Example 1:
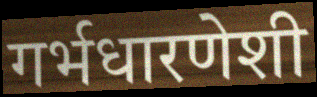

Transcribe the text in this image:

गर्भधारणेशी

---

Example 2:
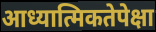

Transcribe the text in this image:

आध्यात्मिकतेपेक्षा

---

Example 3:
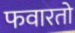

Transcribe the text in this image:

फवारतो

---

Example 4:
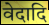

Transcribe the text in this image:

वेदादि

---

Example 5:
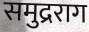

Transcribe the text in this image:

समुद्रराग